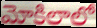
మోకిలాలో